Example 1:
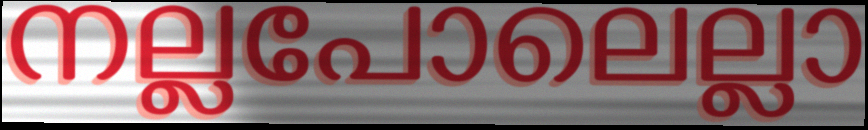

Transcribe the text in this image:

നല്ലപോലെല്ലാ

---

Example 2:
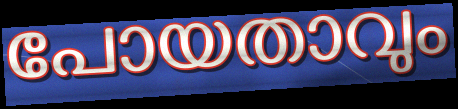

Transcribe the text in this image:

പോയതാവും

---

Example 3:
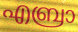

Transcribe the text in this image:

എബ്രാ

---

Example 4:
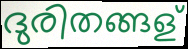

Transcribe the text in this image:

ദുരിതങ്ങള്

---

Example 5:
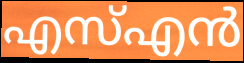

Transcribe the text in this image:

എസ്എൻ